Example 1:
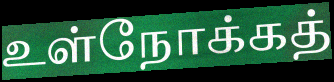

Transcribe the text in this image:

உள்நோக்கத்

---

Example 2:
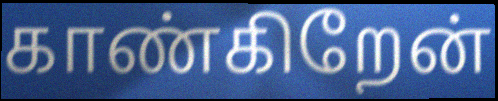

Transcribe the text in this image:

காண்கிறேன்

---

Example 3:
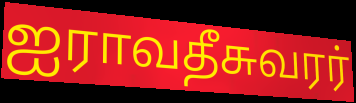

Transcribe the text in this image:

ஐராவதீசுவரர்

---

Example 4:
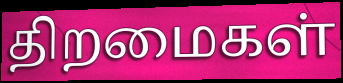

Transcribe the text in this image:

திறமைகள்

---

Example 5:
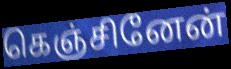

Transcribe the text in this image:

கெஞ்சினேன்